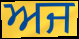
ਅਜ